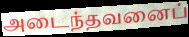
அடைந்தவனைப்